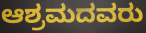
ಆಶ್ರಮದವರು